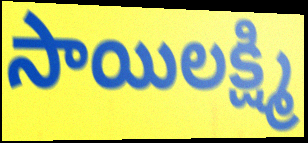
సాయిలక్ష్మి